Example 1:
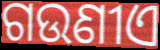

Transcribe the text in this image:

ଗଉଣୀଏ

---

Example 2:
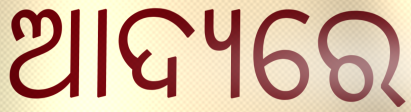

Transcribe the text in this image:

ଆଦ୍ୟରେ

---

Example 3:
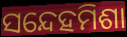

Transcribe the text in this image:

ସନ୍ଦେହମିଶା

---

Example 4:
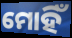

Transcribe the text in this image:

ମୋହିଁ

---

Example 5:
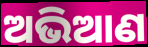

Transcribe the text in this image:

ଅଭିଆଣ